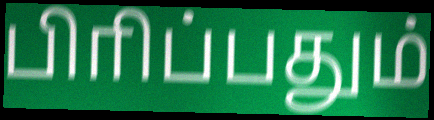
பிரிப்பதும்